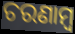
ଚରଣାମ୍ବ